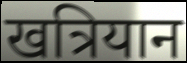
खत्रियान